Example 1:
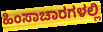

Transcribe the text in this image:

ಹಿಂಸಾಚಾರಗಳಲ್ಲಿ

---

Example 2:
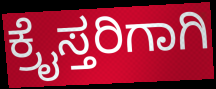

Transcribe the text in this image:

ಕ್ರೈಸ್ತರಿಗಾಗಿ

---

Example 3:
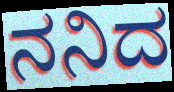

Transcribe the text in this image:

ನನಿದ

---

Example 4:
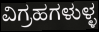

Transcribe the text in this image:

ವಿಗ್ರಹಗಳುಳ್ಳ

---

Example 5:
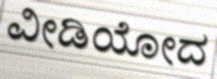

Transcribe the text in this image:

ವೀಡಿಯೋದ